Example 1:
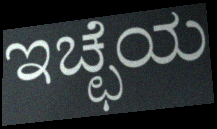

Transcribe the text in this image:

ಇಚ್ಛೆಯ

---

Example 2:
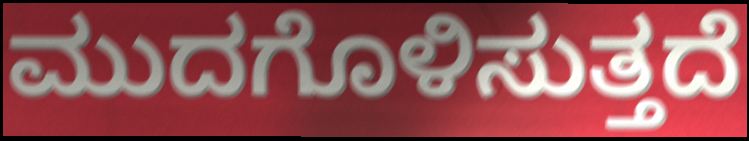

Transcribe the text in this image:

ಮುದಗೊಳಿಸುತ್ತದೆ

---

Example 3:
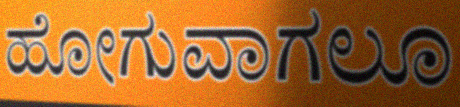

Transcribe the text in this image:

ಹೋಗುವಾಗಲೂ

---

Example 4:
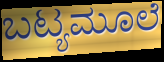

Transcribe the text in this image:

ಬಟ್ಯಮೂಲೆ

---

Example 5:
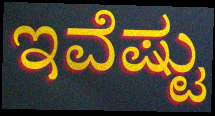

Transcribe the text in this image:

ಇವೆಷ್ಟು